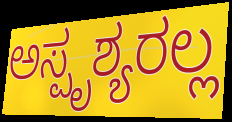
ಅಸ್ಪೃಶ್ಯರಲ್ಲ